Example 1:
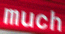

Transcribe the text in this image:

much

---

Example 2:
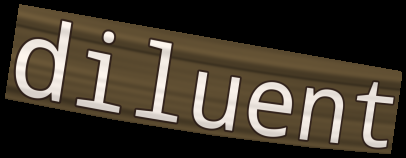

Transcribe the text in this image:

diluent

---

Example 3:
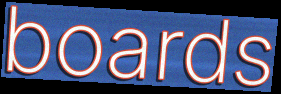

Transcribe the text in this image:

boards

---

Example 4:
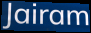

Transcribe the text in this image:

Jairam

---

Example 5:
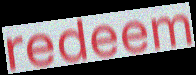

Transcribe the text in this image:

redeem